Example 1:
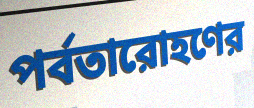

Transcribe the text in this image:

পর্বতারোহণের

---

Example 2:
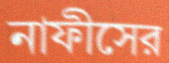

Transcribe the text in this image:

নাফীসের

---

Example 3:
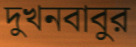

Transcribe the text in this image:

দুখনবাবুর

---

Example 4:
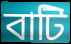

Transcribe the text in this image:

বাটি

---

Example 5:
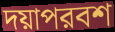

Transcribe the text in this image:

দয়াপরবশ